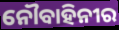
ନୌବାହିନୀର